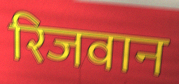
रिजवान